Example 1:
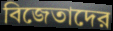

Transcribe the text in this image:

বিজেতাদের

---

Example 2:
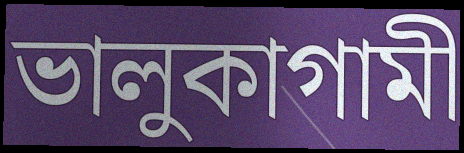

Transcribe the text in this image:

ভালুকাগামী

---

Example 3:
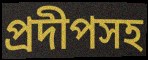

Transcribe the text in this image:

প্রদীপসহ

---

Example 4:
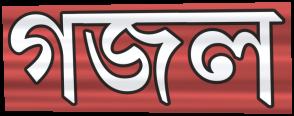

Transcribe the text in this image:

গজল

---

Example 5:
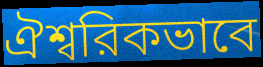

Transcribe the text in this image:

ঐশ্বরিকভাবে